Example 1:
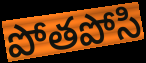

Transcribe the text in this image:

పోతపోసి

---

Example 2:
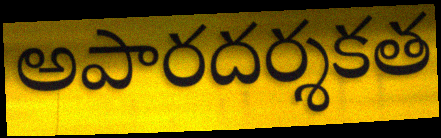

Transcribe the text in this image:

అపారదర్శకత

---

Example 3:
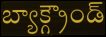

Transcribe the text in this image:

బ్యాక్గ్రౌండ్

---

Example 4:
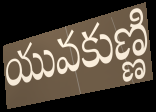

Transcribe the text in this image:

యువకుణ్ణి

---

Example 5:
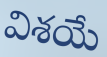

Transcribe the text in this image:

విశయే